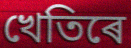
খেতিৰে